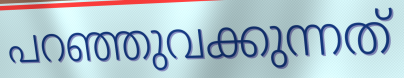
പറഞ്ഞുവക്കുന്നത്